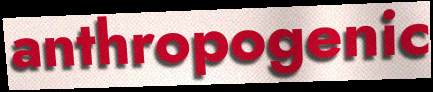
anthropogenic